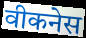
वीकनेस